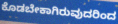
ಕೊಡಬೇಕಾಗಿರುವುದರಿಂದ